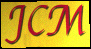
JCM